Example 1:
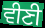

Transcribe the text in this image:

ਵੀਣੀ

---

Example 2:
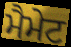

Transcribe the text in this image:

ਮੈਮੇਟ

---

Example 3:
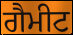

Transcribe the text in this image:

ਗੈਮੀਟ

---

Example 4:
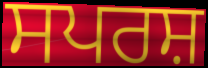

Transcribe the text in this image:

ਸਪਰਸ਼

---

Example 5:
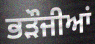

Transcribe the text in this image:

ਭੜੌਜੀਆਂ